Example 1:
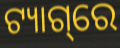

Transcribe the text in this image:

ଟ୍ୟାଗ୍‌ରେ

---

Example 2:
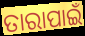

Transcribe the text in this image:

ତାରାପାଇଁ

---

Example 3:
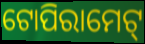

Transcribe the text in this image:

ଟୋପିରାମେଟ୍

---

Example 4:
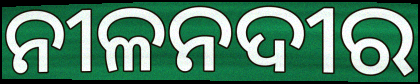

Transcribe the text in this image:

ନୀଳନଦୀର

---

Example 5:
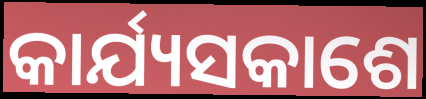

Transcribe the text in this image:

କାର୍ଯ୍ୟସକାଶେ